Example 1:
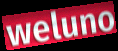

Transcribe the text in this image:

weluno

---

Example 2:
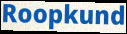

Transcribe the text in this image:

Roopkund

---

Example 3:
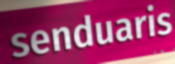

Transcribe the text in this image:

senduaris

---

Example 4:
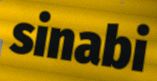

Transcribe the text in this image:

sinabi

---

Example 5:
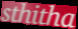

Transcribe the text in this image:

sthitha